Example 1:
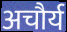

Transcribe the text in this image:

अचौर्य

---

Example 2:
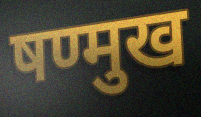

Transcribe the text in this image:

षण्मुख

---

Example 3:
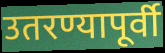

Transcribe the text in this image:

उतरण्यापूर्वी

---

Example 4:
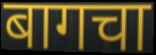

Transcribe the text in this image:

बागचा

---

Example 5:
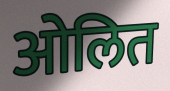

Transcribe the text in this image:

ओलित